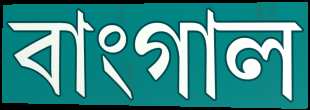
বাংগাল